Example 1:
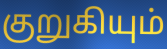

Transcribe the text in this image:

குறுகியும்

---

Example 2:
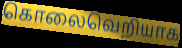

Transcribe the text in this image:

கொலைவெறியாக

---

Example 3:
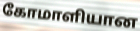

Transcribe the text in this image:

கோமாளியான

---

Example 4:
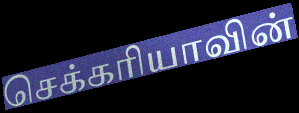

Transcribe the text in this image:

செக்கரியாவின்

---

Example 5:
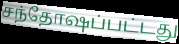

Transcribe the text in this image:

சந்தோஷப்பட்டது